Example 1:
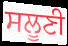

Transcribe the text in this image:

ਸਲੂਣੀ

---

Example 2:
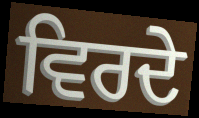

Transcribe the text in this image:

ਵਿਰਦੇ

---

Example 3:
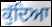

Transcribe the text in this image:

ਕੁੱਦਿਆ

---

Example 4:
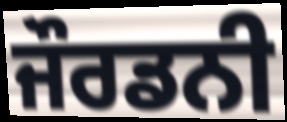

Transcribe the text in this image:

ਜੌਰਡਨੀ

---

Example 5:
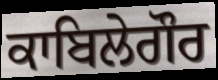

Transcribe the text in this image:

ਕਾਬਿਲੇਗੌਰ